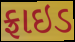
ફ્રાઇડ